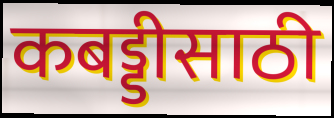
कबड्डीसाठी